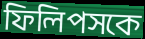
ফিলিপসকে